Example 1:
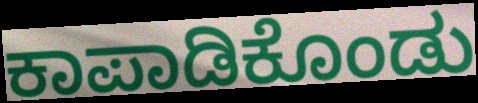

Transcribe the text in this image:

ಕಾಪಾಡಿಕೊಂಡು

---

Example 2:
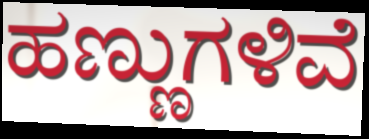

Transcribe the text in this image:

ಹಣ್ಣುಗಳಿವೆ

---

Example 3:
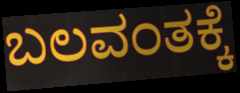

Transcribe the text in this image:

ಬಲವಂತಕ್ಕೆ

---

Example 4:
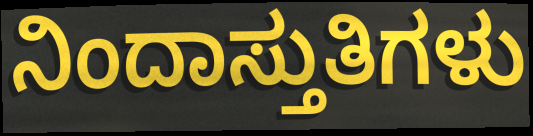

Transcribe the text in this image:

ನಿಂದಾಸ್ತುತಿಗಳು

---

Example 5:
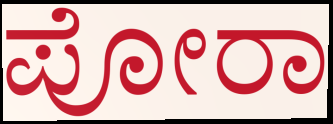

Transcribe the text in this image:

ಪೋರಾ